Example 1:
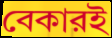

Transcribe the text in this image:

বেকারই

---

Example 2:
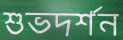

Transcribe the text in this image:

শুভদর্শন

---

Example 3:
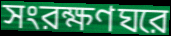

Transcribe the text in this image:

সংরক্ষণঘরে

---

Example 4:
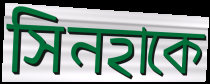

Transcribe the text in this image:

সিনহাকে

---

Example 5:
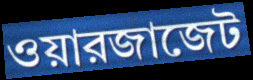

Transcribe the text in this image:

ওয়ারজাজেট